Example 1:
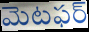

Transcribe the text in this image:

మెటఫర్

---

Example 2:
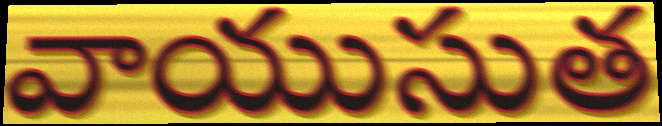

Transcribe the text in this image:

వాయుసుత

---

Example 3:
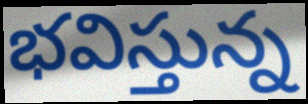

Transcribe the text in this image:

భవిస్తున్న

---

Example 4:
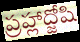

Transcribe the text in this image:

ప్రహ్లాద్జోషి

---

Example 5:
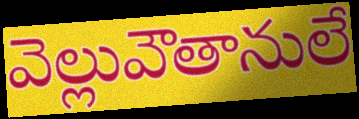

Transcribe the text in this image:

వెల్లువౌతానులే